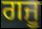
ਗਜੂ